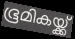
ഭൂമികയ്ക്ക്